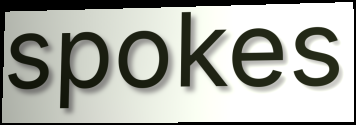
spokes